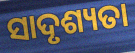
ସାଦୃଶ୍ୟତା